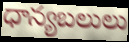
ధాన్యబలులు